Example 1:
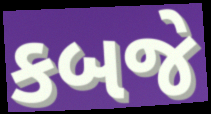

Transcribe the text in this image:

કબજે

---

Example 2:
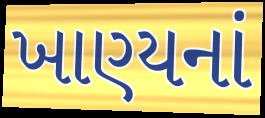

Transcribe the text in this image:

ખાણ્યનાં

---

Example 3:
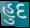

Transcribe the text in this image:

હુદ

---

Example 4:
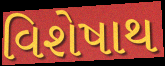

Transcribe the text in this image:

વિશેષાથ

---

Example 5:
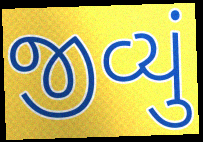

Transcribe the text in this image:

જીવ્યું